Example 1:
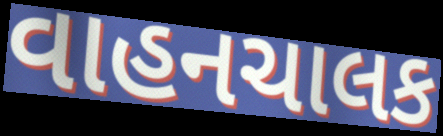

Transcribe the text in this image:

વાહનચાલક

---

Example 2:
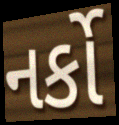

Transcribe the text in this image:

નર્કો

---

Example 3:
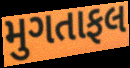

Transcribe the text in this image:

મુગતાફલ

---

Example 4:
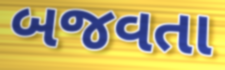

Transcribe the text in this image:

બજવતા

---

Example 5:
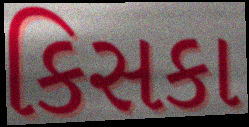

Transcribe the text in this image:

કિસકા